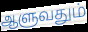
ஆளுவதும்